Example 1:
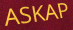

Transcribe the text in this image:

ASKAP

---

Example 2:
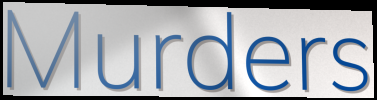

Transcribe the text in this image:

Murders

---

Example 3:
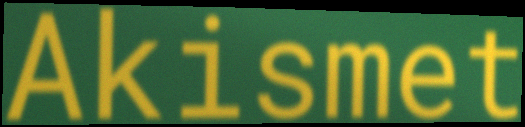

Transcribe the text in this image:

Akismet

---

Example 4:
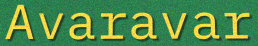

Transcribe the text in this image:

Avaravar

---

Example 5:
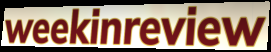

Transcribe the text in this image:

weekinreview